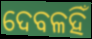
ଦେବଳହିଁ